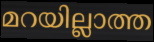
മറയില്ലാത്ത